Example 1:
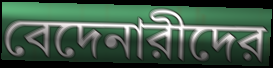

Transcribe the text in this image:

বেদেনারীদের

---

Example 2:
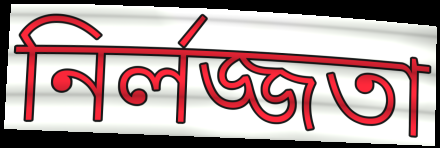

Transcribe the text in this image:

নির্লজ্জতা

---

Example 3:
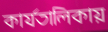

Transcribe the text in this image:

কার্যতালিকায়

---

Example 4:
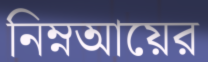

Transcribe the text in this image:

নিম্নআয়ের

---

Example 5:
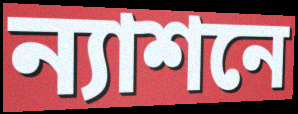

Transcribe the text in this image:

ন্যাশনে